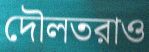
দৌলতরাও